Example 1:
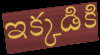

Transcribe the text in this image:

ఇక్కడికి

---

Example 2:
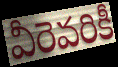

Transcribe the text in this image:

వీరెవరికీ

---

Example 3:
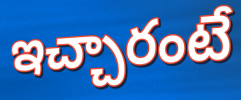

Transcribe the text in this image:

ఇచ్చారంటే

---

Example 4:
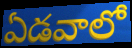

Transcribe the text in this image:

ఏడవాలో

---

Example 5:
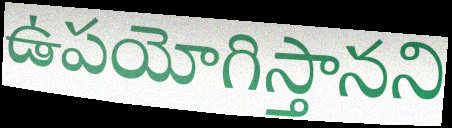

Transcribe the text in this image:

ఉపయోగిస్తానని